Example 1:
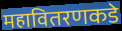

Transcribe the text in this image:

महावितरणकडे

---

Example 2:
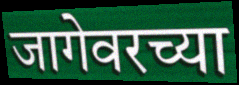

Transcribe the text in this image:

जागेवरच्या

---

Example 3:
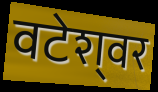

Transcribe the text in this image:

वटेश्वर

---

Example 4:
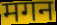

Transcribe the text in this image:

मगन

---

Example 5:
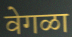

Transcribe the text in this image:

वेगळा